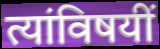
त्यांविषयीं